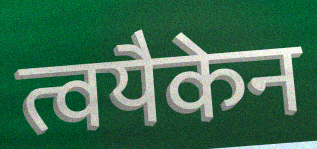
त्वयैकेन